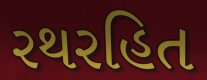
રથરહિત